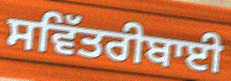
ਸਵਿੱਤਰੀਬਾਈ